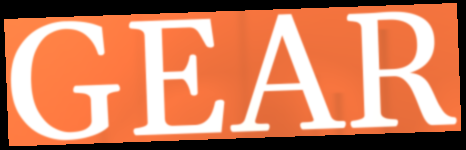
GEAR